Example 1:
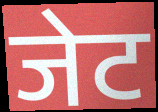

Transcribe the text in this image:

जेट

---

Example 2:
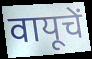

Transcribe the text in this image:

वायूचें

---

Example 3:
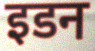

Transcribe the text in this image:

इडन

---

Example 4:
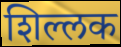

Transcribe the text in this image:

शिल्लक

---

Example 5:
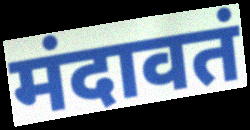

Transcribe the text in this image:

मंदावतं